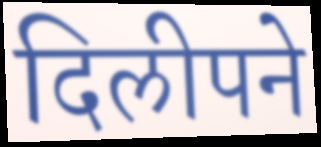
दिलीपने